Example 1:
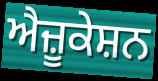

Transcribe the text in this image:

ਐਜ਼ੂਕੇਸ਼ਨ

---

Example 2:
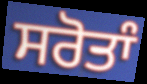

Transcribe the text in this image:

ਸਰੋਤਾੰ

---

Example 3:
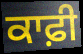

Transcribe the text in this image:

ਕਾਫ਼ੀ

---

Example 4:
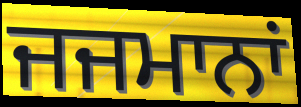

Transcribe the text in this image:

ਜਜਮਾਨਾਂ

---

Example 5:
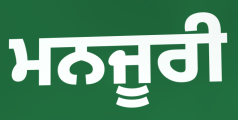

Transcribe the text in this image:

ਮਨਜੂਰੀ